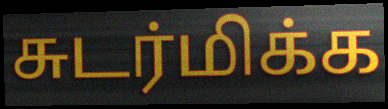
சுடர்மிக்க